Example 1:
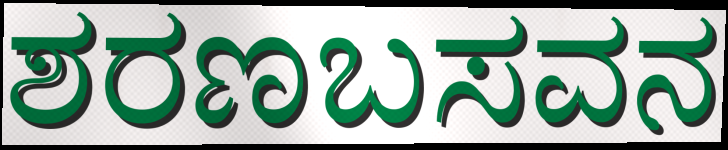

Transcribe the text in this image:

ಶರಣಬಸವನ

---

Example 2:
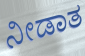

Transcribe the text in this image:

ನೀಡಾತ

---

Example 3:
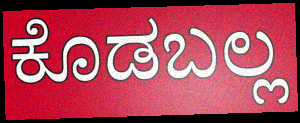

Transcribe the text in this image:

ಕೊಡಬಲ್ಲ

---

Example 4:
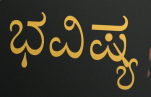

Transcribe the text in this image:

ಭವಿಷ್ಯ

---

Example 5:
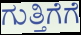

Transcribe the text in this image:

ಗುತ್ತಿಗೆಗೆ